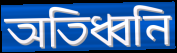
অতিধ্বনি